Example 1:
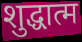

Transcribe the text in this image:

शुद्धात्म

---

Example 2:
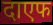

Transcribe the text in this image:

दाएफ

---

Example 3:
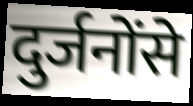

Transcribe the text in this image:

दुर्जनोंसे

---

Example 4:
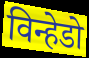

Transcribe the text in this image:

विन्हेडो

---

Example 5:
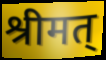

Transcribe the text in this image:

श्रीमत्